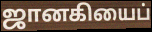
ஜானகியைப்